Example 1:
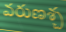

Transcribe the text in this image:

వరుణశ్చ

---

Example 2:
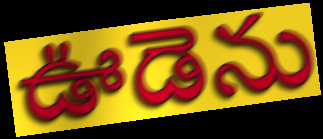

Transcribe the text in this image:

ఊడెను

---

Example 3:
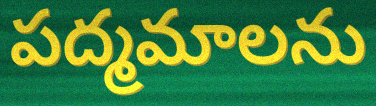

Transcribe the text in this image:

పద్మమాలను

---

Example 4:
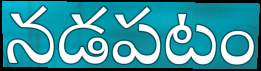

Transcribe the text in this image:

నడపటం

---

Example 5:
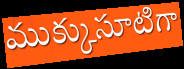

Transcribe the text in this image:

ముక్కుసూటిగా